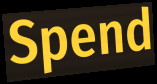
Spend